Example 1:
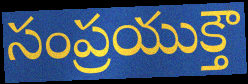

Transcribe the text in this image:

సంప్రయుక్తౌ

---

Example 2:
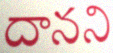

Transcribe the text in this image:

దానని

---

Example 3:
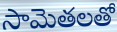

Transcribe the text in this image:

సామెతలతో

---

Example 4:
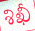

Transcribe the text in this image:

శిఖీ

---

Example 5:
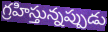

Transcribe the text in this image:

గ్రహిస్తున్నప్పుడు